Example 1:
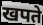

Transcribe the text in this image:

खपते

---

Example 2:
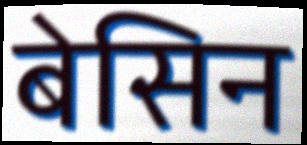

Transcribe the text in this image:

बेसिन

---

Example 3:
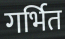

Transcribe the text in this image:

गर्भित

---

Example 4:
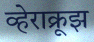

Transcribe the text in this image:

व्हेराक्रूझ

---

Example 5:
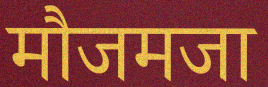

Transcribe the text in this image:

मौजमजा